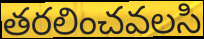
తరలించవలసి